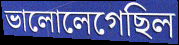
ভালোলেগেছিল